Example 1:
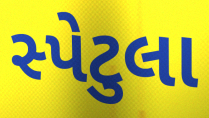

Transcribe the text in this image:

સ્પેટુલા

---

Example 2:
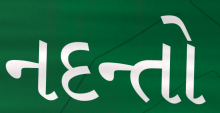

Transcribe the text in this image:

નદન્તો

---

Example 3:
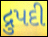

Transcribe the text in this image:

દ્રુપદી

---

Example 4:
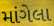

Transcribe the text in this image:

માંગેલા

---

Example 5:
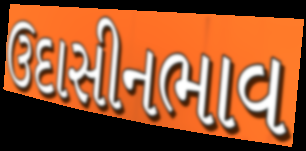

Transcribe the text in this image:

ઉદાસીનભાવ